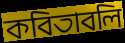
কবিতাবলি